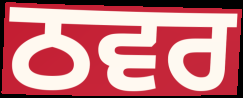
ਠਵਰ